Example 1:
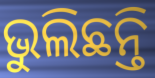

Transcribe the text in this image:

ଭୁଲିଛନ୍ତି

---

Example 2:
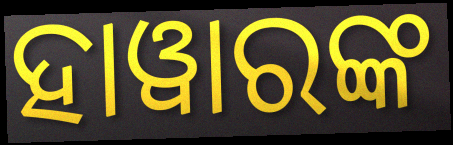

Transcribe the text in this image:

ହାୱାରଙ୍କ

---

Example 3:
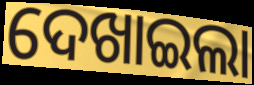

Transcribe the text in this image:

ଦେଖାଇଲା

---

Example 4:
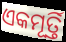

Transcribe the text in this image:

ଏକମୂର୍ତ୍ତି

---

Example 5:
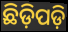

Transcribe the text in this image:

ଛିଡ଼ିପଡ଼ି